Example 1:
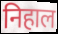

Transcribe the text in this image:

निहाल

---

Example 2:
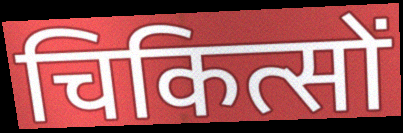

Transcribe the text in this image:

चिकित्सों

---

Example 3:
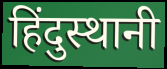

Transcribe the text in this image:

हिंदुस्थानी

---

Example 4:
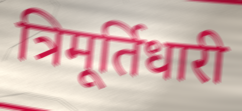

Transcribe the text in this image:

त्रिमूर्तिधारी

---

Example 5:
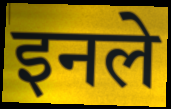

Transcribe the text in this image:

इनले